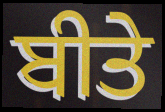
ਬੀਤੇ